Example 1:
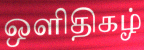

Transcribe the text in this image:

ஒளிதிகழ்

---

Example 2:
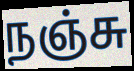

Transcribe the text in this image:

நஞ்சு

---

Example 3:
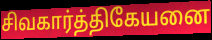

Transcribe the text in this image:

சிவகார்த்திகேயனை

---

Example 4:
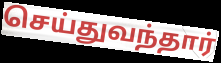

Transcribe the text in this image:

செய்துவந்தார்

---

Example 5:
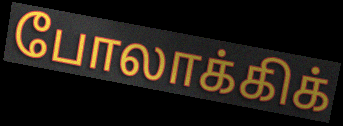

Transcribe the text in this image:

போலாக்கிக்